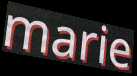
marie